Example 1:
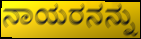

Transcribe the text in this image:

ನಾಯರನನ್ನು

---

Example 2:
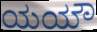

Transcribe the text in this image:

ಯಯೌ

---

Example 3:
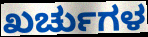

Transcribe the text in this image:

ಖರ್ಚುಗಳ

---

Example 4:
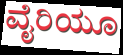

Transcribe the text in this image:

ವೈರಿಯೂ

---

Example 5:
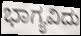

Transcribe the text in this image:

ಭಾಗ್ಯವಿದು